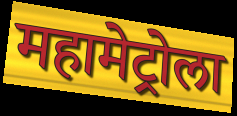
महामेट्रोला